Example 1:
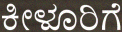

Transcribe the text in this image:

ಕೀಳೂರಿಗೆ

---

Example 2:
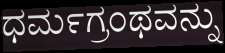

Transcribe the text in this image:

ಧರ್ಮಗ್ರಂಥವನ್ನು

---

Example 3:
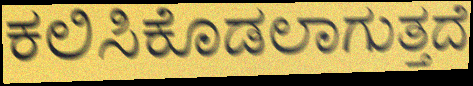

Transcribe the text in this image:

ಕಲಿಸಿಕೊಡಲಾಗುತ್ತದೆ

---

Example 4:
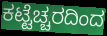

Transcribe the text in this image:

ಕಟ್ಟೆಚ್ಚರದಿಂದ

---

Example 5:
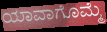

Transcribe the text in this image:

ಯಾವಾಗೊಮ್ಮೆ